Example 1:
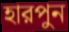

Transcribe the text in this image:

হারপুন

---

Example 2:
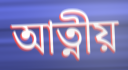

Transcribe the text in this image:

আত্নীয়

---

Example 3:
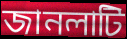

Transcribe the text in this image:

জানলাটি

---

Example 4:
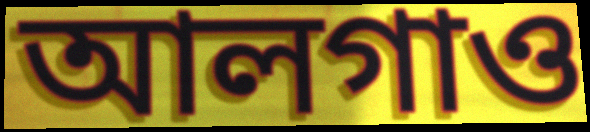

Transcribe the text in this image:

আলগাও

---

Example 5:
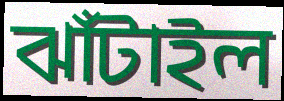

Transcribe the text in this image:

ঝাঁটাইল